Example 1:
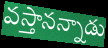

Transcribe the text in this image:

వస్తానన్నాడు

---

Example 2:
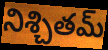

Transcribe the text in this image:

నిశ్చితమ్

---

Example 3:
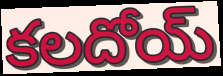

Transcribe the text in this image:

కలదోయ్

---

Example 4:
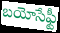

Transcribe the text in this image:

బయోసేఫ్టీ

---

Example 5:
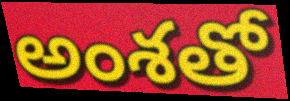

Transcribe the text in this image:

అంశతో